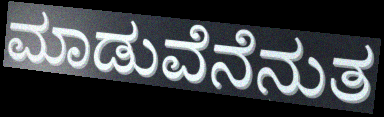
ಮಾಡುವೆನೆನುತ